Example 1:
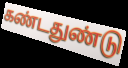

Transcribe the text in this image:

கண்டதுண்டு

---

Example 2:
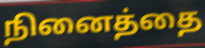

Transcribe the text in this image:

நினைத்தை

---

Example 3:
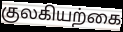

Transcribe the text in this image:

குலகியற்கை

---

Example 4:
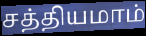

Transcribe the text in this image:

சத்தியமாம்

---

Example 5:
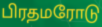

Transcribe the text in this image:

பிரதமரோடு